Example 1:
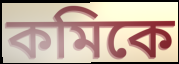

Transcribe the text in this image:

কমিকে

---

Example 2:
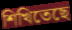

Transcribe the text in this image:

শিখিতেছে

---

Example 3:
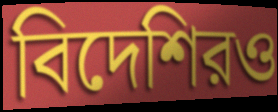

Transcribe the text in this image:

বিদেশিরও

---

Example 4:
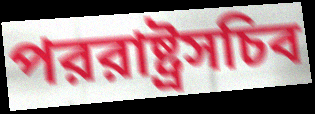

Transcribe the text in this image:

পররাষ্ট্রসচিব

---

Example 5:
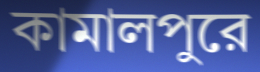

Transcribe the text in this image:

কামালপুরে